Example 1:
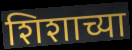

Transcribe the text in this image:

शिशाच्या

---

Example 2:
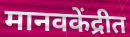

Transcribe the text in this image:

मानवकेंद्रीत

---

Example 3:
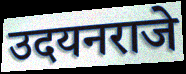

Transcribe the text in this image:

उदयनराजे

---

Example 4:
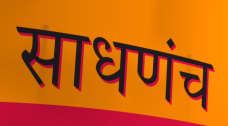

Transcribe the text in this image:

साधणंच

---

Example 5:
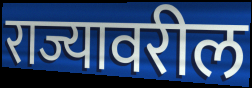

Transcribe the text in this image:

राज्यावरील